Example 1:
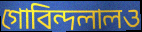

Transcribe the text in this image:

গোবিন্দলালও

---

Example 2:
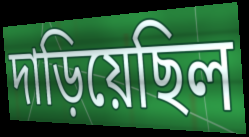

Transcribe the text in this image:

দাড়িয়েছিল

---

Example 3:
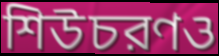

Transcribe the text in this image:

শিউচরণও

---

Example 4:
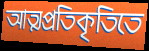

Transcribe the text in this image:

আত্মপ্রতিকৃতিতে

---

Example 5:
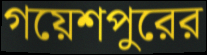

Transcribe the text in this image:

গয়েশপুরের